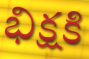
భిక్షకి